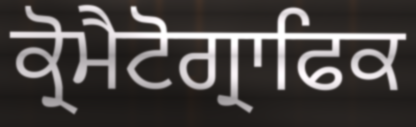
ਕ੍ਰੋਮੈਟੋਗ੍ਰਾਫਿਕ